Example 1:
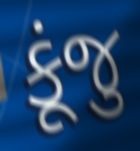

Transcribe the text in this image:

કૂંજુ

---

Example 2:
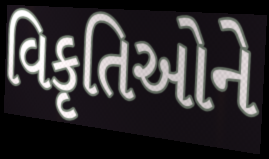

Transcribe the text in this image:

વિકૃતિઓને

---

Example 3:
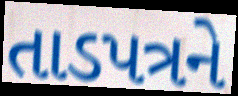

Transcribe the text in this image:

તાડપત્રને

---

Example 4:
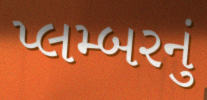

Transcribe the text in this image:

પ્લમ્બરનું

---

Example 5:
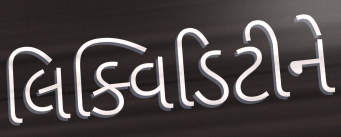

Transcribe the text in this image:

લિક્વિડિટીને